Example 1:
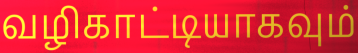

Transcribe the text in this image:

வழிகாட்டியாகவும்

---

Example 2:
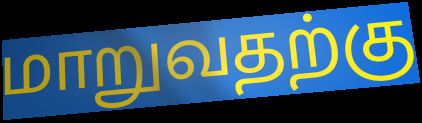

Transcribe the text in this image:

மாறுவதற்கு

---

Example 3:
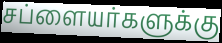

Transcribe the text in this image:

சப்ளையர்களுக்கு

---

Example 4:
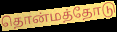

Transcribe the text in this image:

தொன்மத்தோடு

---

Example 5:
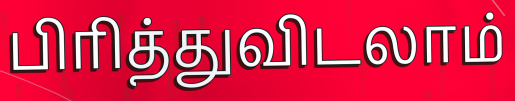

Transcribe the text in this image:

பிரித்துவிடலாம்